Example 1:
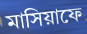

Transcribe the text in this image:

মাসিয়াফে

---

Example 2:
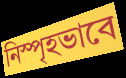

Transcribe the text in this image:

নিস্পৃহভাবে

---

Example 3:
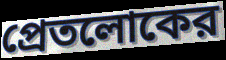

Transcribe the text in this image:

প্রেতলোকের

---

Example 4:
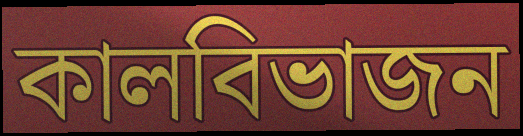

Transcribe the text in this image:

কালবিভাজন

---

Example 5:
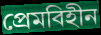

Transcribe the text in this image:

প্রেমবিহীন